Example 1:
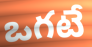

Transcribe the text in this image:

ఒగటే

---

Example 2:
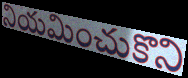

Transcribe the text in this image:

నియమించుకొని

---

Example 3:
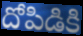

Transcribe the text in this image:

దోపిడికి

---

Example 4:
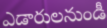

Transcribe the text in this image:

ఎడారులనుండీ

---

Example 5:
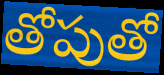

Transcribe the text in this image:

తోపుతో